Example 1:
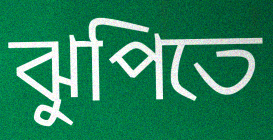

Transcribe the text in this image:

ঝুপিতে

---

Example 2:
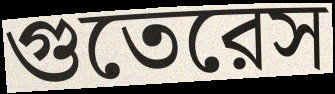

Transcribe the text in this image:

গুতেরেস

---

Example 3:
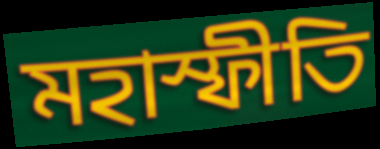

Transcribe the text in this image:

মহাস্ফীতি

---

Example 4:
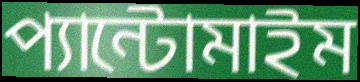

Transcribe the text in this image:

প্যান্টোমাইম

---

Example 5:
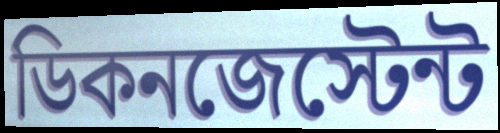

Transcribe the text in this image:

ডিকনজেস্টেন্ট